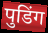
पुडिंग